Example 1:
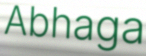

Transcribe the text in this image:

Abhaga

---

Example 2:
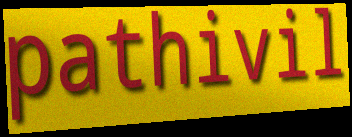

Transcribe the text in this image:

pathivil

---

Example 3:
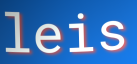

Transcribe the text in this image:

leis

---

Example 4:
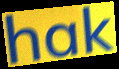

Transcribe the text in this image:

hak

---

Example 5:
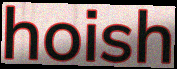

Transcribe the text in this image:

hoish